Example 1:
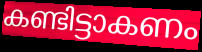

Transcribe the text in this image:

കണ്ടിട്ടാകണം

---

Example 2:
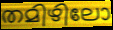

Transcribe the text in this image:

തമിഴിലോ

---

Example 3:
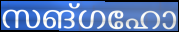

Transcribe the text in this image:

സങ്ഗഹോ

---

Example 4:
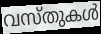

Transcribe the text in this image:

വസ്തുകൾ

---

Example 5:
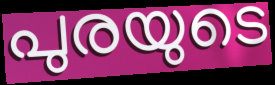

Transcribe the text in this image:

പുരയുടെ